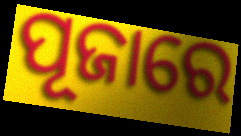
ପୂଜାରେ